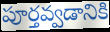
పూర్తవ్వడానికి